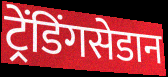
ट्रेंडिंगसेडान